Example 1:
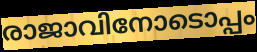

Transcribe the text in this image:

രാജാവിനോടൊപ്പം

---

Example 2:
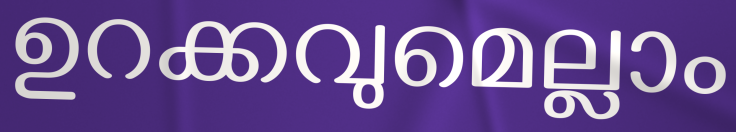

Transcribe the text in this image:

ഉറക്കവുമെല്ലാം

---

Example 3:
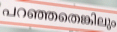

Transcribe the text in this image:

പറഞ്ഞതെങ്കിലും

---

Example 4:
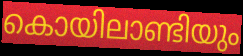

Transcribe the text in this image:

കൊയിലാണ്ടിയും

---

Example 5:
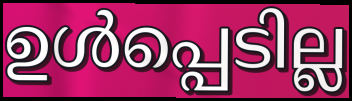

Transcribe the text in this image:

ഉൾപ്പെടില്ല